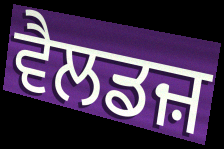
ਵੈਲਡਜ਼